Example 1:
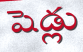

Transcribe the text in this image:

షెడ్లు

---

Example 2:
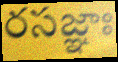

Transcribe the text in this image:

రసజ్ఞాః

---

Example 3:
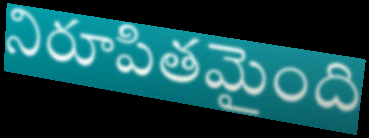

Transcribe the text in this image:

నిరూపితమైంది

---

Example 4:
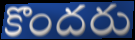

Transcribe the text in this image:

కొందరు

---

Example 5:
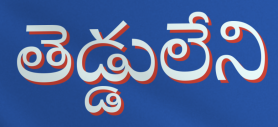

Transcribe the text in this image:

తెడ్డులేని